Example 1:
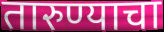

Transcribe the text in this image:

तारुण्याचा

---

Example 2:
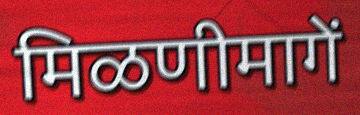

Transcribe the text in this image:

मिळणीमागें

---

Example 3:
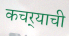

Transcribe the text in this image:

कचर्याची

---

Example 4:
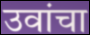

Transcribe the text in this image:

उवांचा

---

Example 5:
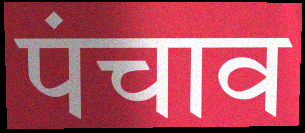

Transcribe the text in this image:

पंचाव